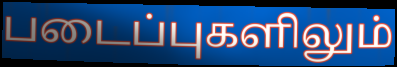
படைப்புகளிலும்